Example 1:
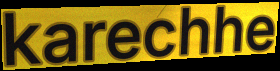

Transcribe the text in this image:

karechhe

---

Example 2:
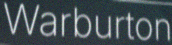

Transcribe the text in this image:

Warburton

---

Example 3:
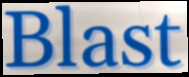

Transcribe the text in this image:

Blast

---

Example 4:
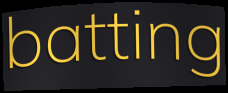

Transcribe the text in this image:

batting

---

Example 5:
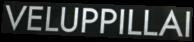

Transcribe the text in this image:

VELUPPILLAI